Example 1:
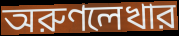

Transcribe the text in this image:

অরুণলেখার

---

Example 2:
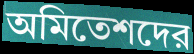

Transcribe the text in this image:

অমিতেশদের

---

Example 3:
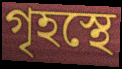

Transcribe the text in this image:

গৃহস্থে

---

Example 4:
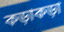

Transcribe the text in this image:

কড়াকড়া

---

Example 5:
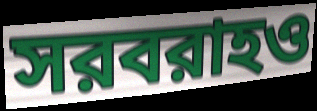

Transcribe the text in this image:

সরবরাহও